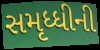
સમૃધ્ધીની